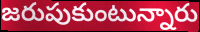
జరుపుకుంటున్నారు